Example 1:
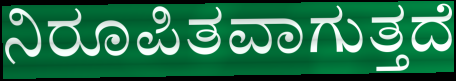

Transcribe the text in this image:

ನಿರೂಪಿತವಾಗುತ್ತದೆ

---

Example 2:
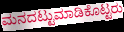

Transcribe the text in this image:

ಮನದಟ್ಟುಮಾಡಿಕೊಟ್ಟರು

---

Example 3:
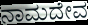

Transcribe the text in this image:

ನಾಮದೇವ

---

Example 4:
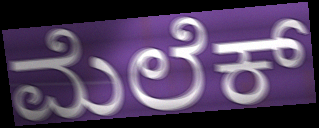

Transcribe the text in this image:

ಮೆಲೆಕ್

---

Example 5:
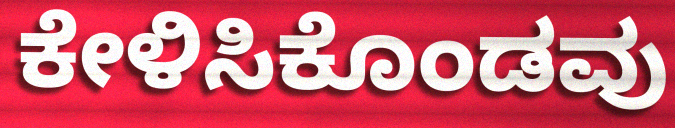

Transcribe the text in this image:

ಕೇಳಿಸಿಕೊಂಡವು